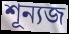
শূন্যজ